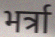
भर्त्रा